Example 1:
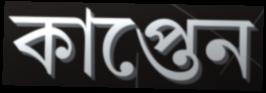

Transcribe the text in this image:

কাপ্তেন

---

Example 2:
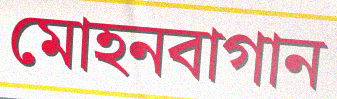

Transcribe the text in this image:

মোহনবাগান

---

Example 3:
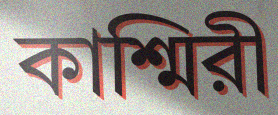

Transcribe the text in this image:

কাশ্মিরী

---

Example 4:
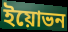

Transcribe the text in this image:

ইয়োভন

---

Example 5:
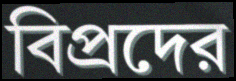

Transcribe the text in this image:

বিপ্রদের